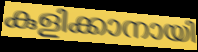
കുളിക്കാനായി